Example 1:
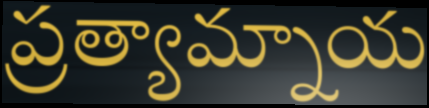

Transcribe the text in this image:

ప్రత్యామ్నాయ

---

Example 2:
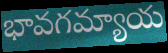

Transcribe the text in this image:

భావగమ్యాయ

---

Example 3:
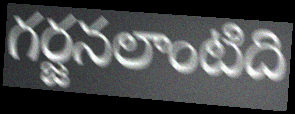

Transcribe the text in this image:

గర్జనలాంటిది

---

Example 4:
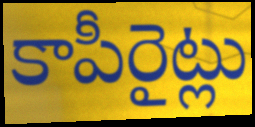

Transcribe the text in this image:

కాపీరైట్లు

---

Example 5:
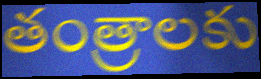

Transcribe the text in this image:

తంత్రాలకు